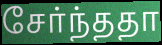
சேர்ந்ததா